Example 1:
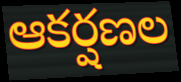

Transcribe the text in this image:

ఆకర్షణల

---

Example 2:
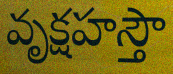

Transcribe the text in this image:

వృక్షహస్తౌ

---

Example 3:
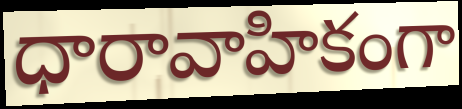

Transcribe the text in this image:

ధారావాహికంగా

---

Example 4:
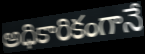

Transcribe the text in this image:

అధికారికంగానే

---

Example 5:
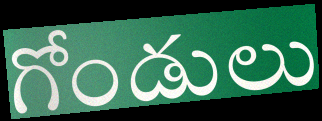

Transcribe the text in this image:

గోండులు